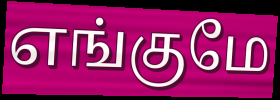
எங்குமே